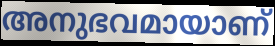
അനുഭവമായാണ്